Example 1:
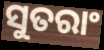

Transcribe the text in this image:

ସୁତରାଂ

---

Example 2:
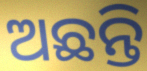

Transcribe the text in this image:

ଅଛନ୍ତି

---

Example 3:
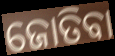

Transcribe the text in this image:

ଜୋତିବା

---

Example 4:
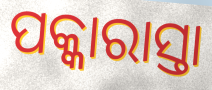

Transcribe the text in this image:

ପକ୍କାରାସ୍ତା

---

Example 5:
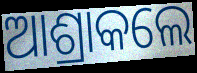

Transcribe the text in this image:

ଆଶ୍ରାକଲେ